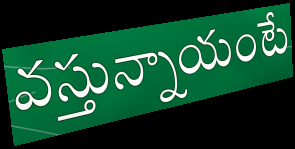
వస్తున్నాయంటే